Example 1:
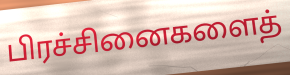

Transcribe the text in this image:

பிரச்சினைகளைத்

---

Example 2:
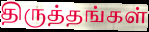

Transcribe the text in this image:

திருத்தங்கள்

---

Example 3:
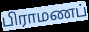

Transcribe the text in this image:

பிராமணப்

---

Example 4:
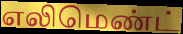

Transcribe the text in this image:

எலிமெண்ட்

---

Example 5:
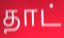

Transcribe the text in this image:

தாட்